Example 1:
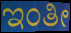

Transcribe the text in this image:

ಇಂತೀ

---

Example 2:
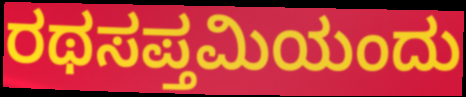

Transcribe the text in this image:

ರಥಸಪ್ತಮಿಯಂದು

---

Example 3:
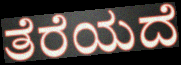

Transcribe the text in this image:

ತೆರೆಯದೆ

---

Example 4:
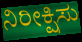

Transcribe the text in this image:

ನಿರೀಕ್ಷಿಸು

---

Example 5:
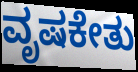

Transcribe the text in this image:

ವೃಷಕೇತು